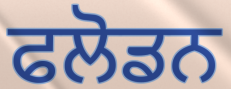
ਫਲੋਡਨ